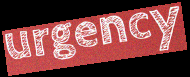
urgency